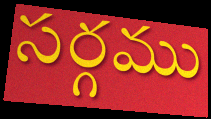
సర్గము